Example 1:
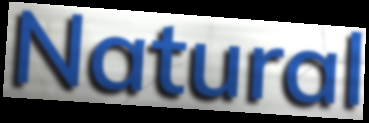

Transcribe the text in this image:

Natural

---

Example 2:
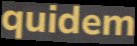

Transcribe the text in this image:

quidem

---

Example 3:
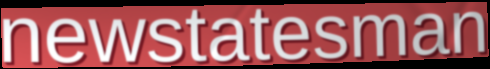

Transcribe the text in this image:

newstatesman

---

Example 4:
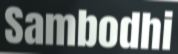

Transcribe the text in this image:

Sambodhi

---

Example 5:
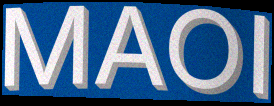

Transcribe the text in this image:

MAOI